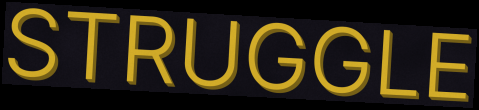
STRUGGLE